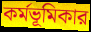
কর্মভূমিকার